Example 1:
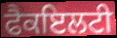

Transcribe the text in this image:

ਫੈਕਇਲਟੀ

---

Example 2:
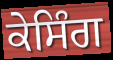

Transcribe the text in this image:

ਕੇਸਿੰਗ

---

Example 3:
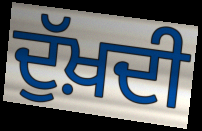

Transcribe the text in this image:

ਦੁੱਖ਼ਦੀ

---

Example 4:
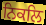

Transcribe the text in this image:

ਨਿਕਲਿ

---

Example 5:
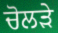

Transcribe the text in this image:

ਚੋਲੜੇ